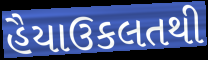
હૈયાઉકલતથી